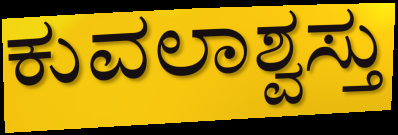
ಕುವಲಾಶ್ವಸ್ತು